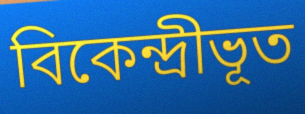
বিকেন্দ্রীভূত